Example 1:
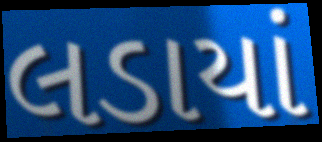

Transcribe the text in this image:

લડાયાં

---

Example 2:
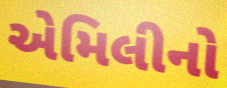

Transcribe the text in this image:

એમિલીનો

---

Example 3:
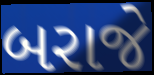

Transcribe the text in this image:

બરાજે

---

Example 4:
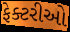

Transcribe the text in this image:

ફેક્ટરીઓ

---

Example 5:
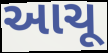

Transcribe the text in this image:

આચૂ